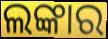
ଲଙ୍କାର